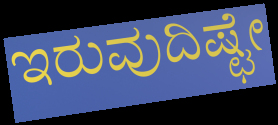
ಇರುವುದಿಷ್ಟೇ